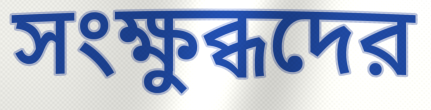
সংক্ষুব্ধদের